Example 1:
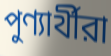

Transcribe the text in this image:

পুণ্যার্থীরা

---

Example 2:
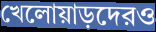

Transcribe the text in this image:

খেলোয়াড়দেরও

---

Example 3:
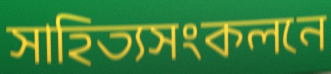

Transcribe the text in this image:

সাহিত্যসংকলনে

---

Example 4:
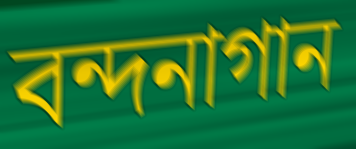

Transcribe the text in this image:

বন্দনাগান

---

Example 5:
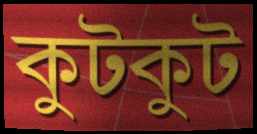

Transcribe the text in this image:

কুটকুট